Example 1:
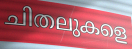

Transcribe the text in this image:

ചിതലുകളെ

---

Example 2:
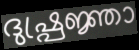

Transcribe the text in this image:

ദുഷ്പ്രജ്ഞാ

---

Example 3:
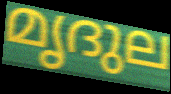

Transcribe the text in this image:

മൃദുല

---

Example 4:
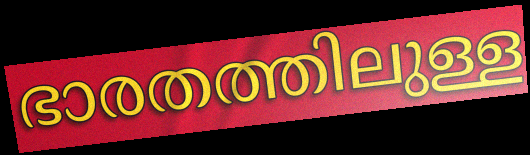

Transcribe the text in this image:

ഭാരതത്തിലുള്ള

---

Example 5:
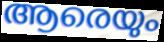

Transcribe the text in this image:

ആരെയും